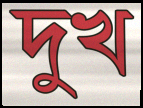
দুখ